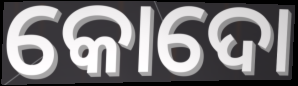
କୋଦୋ